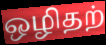
ஒழிதற்